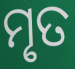
ମୃତ